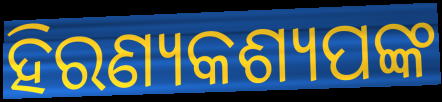
ହିରଣ୍ୟକଶ୍ୟପଙ୍କ